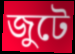
জুটে